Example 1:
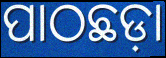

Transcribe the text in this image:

ପାଠଛଡ଼ା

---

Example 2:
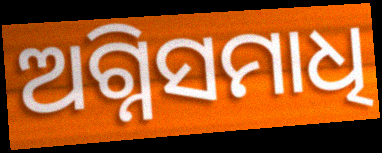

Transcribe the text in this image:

ଅଗ୍ନିସମାଧି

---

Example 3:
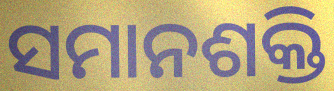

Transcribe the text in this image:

ସମାନଶକ୍ତି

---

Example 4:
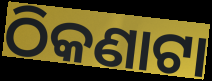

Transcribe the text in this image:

ଠିକଣାଟା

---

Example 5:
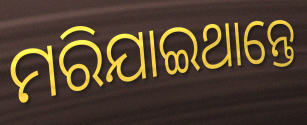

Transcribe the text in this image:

ମରିଯାଇଥାନ୍ତେ